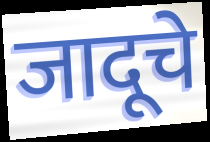
जादूचे